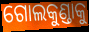
ଗୋଲକୁଣ୍ଡାକୁ